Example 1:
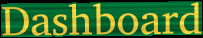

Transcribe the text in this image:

Dashboard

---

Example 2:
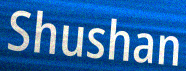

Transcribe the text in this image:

Shushan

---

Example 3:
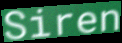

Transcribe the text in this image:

Siren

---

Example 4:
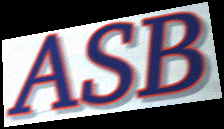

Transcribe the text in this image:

ASB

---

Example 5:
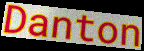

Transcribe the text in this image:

Danton